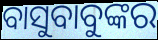
ବାସୁବାବୁଙ୍କର